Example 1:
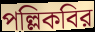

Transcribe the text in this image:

পল্লিকবির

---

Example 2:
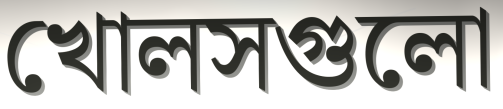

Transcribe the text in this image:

খোলসগুলো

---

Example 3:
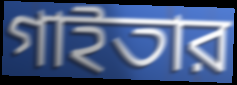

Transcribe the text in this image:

গাইতার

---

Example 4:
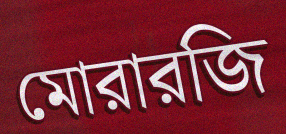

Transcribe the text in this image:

মোরারজি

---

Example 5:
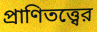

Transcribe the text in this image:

প্রাণিতত্ত্বের